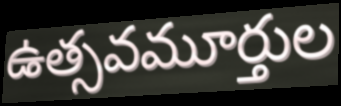
ఉత్సవమూర్తుల